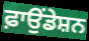
ਫ਼ਾਉਂਡੇਸ਼ਨ